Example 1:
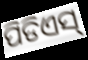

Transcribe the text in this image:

ପିଡିଏସ୍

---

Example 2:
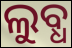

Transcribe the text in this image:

ଲୁବ୍ଧ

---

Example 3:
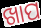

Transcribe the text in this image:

ଖାପ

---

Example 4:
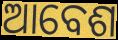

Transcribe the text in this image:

ଆବେଶ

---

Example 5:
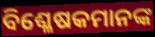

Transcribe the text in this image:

ବିଶ୍ଳେଷକମାନଙ୍କ